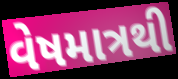
વેષમાત્રથી